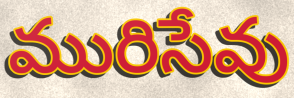
మురిసేవు